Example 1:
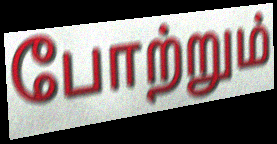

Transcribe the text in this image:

போற்றும்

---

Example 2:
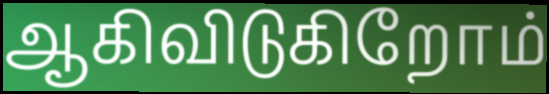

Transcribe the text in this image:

ஆகிவிடுகிறோம்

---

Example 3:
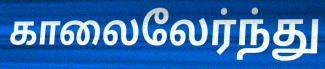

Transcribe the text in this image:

காலைலேர்ந்து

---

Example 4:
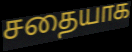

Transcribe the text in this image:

சதையாக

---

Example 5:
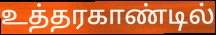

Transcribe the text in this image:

உத்தரகாண்டில்